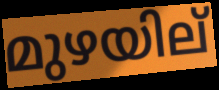
മുഴയില്